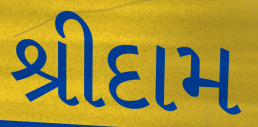
શ્રીદામ